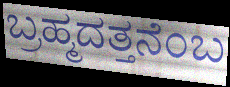
ಬ್ರಹ್ಮದತ್ತನೆಂಬ